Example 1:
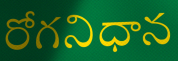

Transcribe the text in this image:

రోగనిధాన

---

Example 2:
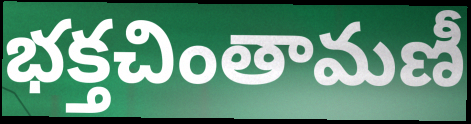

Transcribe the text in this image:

భక్తచింతామణీ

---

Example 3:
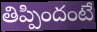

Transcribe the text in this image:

తిప్పిందంటే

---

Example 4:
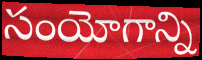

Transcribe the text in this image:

సంయోగాన్ని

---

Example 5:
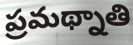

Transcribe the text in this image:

ప్రమథ్నాతి